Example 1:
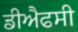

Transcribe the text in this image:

ਡੀਐਫਸੀ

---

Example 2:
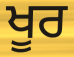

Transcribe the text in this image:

ਖੂਰ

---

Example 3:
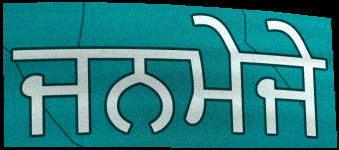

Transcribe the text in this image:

ਜਨਮੇਜੇ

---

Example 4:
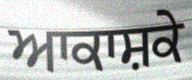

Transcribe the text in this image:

ਆਕਾਸ਼ਕੇ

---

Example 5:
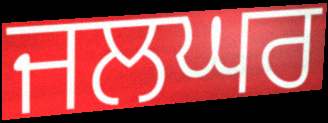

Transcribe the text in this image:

ਜਲਘਰ